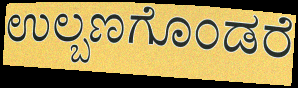
ಉಲ್ಬಣಗೊಂಡರೆ